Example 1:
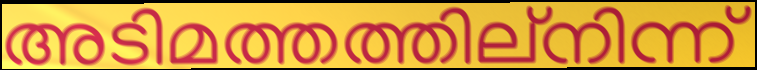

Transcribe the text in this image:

അടിമത്തത്തില്നിന്ന്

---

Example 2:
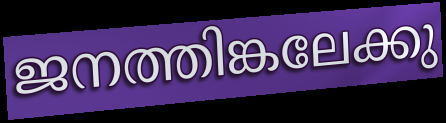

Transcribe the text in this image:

ജനത്തിങ്കലേക്കു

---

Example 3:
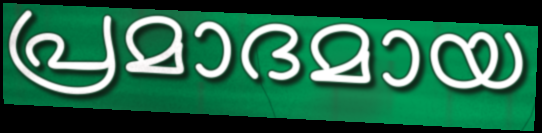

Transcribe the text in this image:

പ്രമാദമായ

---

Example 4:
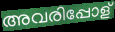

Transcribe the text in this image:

അവരിപ്പോള്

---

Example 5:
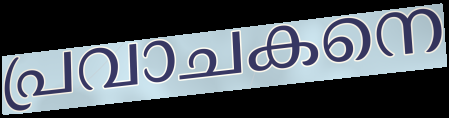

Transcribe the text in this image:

പ്രവാചകനെ